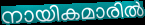
നായികമാരിൽ